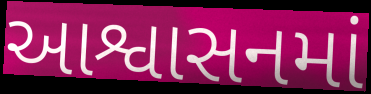
આશ્વાસનમાં